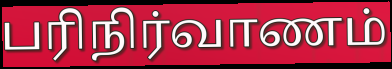
பரிநிர்வாணம்